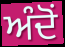
ਅੰਦੋਂ